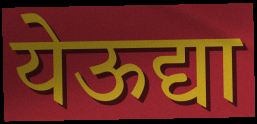
येऊद्या